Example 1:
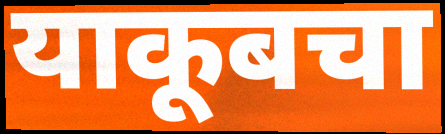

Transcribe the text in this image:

याकूबचा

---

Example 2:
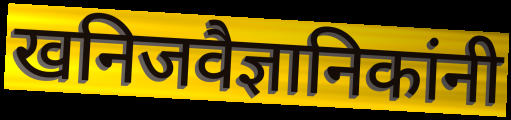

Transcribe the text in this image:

खनिजवैज्ञानिकांनी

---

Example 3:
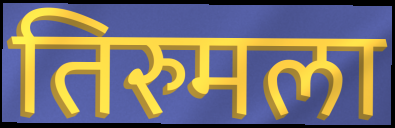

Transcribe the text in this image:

तिरुमला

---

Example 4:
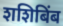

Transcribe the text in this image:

शशिबिंब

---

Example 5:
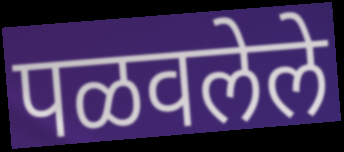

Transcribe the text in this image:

पळवलेले